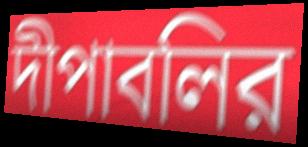
দীপাবলির